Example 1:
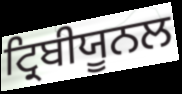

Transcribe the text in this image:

ਟ੍ਰਿਬੀਯੂਨਲ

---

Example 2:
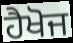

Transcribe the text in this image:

ਹੈਖੋਜ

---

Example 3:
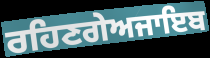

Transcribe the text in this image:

ਰਹਿਣਗੇਅਜਾਇਬ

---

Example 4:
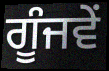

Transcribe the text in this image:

ਗੂੰਜਵੇਂ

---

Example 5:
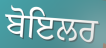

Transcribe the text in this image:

ਬੋਇਲਰ